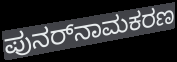
ಪುನರ್‌ನಾಮಕರಣ